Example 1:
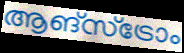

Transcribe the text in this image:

ആങ്സ്ട്രോം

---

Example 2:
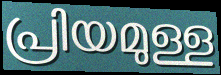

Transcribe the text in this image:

പ്രിയമുള്ള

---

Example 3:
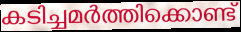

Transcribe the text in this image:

കടിച്ചമർത്തിക്കൊണ്ട്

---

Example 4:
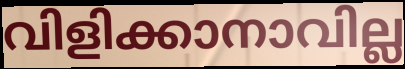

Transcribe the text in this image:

വിളിക്കാനാവില്ല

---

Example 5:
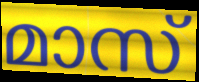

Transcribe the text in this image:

മാസ്